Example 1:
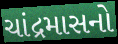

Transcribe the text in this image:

ચાંદ્રમાસનો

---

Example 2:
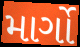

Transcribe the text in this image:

માર્ગો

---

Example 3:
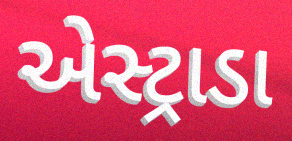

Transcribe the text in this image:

એસ્ટ્રાડા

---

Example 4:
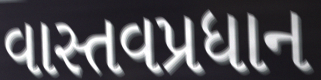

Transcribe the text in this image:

વાસ્તવપ્રધાન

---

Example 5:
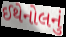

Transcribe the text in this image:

ઈથેનોલનું